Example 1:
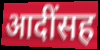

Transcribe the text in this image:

आदींसह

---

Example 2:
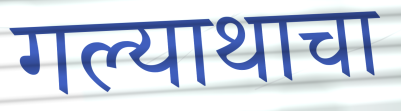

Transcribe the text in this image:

गल्याथाचा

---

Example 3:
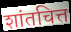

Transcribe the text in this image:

शांतचित्त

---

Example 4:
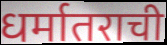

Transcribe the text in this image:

धर्मातराची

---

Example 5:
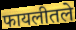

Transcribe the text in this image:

फायलीतले